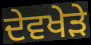
ਦੇਵਖੇੜੇ